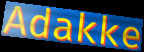
Adakke